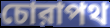
চোরাপথ